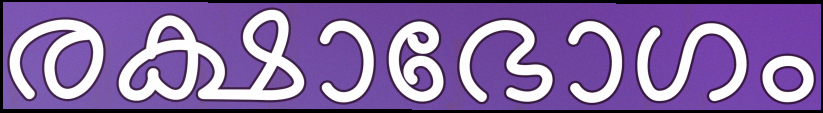
രക്ഷാഭോഗം